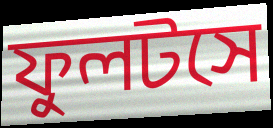
ফুলটসে